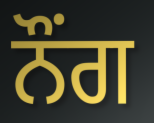
ਨੌਂਗ